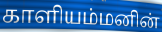
காளியம்மனின்